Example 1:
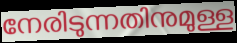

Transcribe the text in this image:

നേരിടുന്നതിനുമുള്ള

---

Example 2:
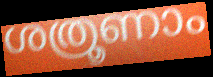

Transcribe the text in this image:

ശത്രൂണാം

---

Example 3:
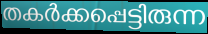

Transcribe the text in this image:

തകർക്കപ്പെട്ടിരുന്ന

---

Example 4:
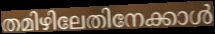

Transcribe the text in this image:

തമിഴിലേതിനേക്കാൾ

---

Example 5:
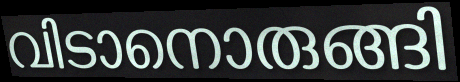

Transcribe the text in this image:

വിടാനൊരുങ്ങി